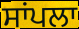
ਸਾਂਪਲਾ